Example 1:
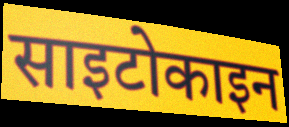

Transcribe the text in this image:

साइटोकाइन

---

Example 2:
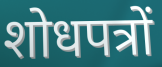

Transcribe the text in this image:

शोधपत्रों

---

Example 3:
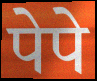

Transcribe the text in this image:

पेपे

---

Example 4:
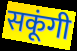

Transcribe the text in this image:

सकूंगी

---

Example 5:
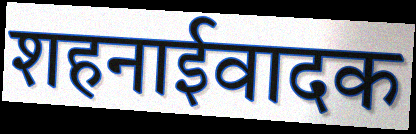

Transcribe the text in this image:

शहनाईवादक